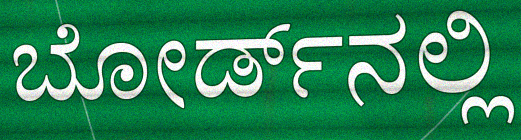
ಬೋರ್ಡ್‌ನಲ್ಲಿ